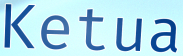
Ketua